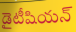
డైటీషియన్